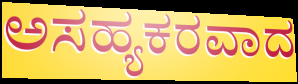
ಅಸಹ್ಯಕರವಾದ